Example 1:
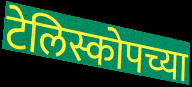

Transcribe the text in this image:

टेलिस्कोपच्या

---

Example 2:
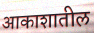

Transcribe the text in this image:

आकाशातील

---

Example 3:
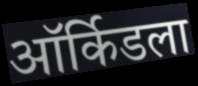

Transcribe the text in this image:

ऑर्किडला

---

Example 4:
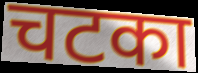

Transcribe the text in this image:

चटका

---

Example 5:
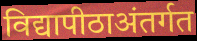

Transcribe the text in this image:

विद्यापीठाअंतर्गत